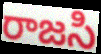
రాజసి